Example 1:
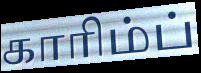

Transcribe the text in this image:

காரிம்ப்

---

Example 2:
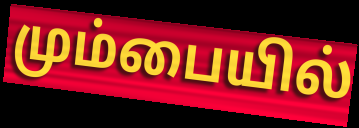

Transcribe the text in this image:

மும்பையில்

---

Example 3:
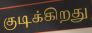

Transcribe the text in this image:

குடிக்கிறது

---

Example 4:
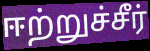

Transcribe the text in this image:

ஈற்றுச்சீர்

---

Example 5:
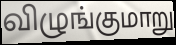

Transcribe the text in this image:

விழுங்குமாறு